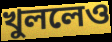
খুললেও